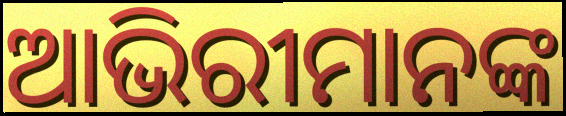
ଆଭିରୀମାନଙ୍କ